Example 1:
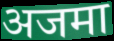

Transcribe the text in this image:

अजमा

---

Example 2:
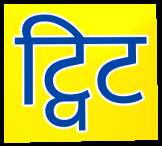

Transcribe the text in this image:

ट्विट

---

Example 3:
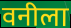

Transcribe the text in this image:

वनीला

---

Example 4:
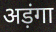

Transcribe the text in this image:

अड़ंगा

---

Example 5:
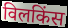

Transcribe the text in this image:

विलकिंस